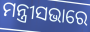
ମନ୍ତ୍ରୀସଭାରେ